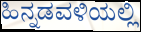
ಹಿನ್ನಡವಳಿಯಲ್ಲಿ